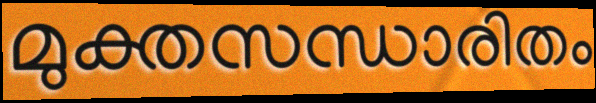
മുക്തസന്ധാരിതം